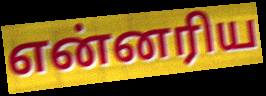
என்னரிய